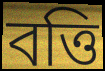
বত্তি